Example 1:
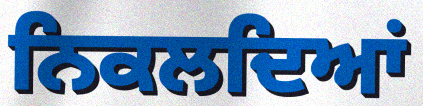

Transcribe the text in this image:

ਨਿਕਲਦਿਆਂ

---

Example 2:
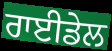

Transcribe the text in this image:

ਰਾਈਡੇਲ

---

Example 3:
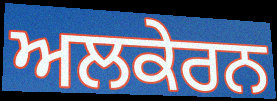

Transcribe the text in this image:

ਅਲਕੇਰਨ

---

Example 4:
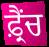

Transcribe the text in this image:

ਫ਼੍ਰੈਂਚ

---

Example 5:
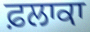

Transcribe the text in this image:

ਫ਼ਲਾਕਾ